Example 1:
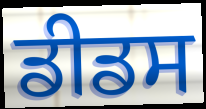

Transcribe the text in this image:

ਡੀਡਸ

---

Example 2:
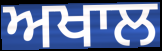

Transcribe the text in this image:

ਅਖਾਲ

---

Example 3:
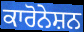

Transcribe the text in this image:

ਕਾਰੋਨੇਸ਼ਨ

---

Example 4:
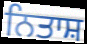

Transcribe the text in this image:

ਨਿਤਾਸ਼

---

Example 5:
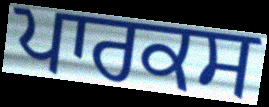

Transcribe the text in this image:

ਪਾਰਕਸ